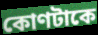
কোণটাকে